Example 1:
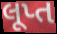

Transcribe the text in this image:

લૂપ્ત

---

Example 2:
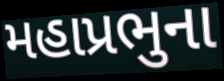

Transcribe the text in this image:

મહાપ્રભુના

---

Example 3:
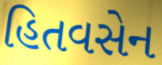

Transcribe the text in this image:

હિતવસેન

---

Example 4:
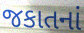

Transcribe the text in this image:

જકાતનાં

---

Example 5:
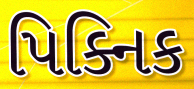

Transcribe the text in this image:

પિક્નિક